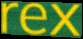
rex